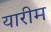
यारीम